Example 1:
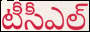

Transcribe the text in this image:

టీసీఎల్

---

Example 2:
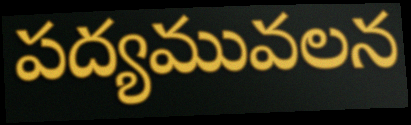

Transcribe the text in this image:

పద్యమువలన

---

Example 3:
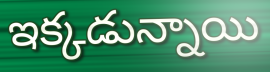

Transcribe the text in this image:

ఇక్కడున్నాయి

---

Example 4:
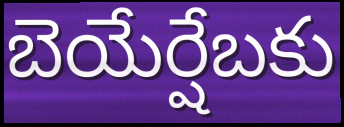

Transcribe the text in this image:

బెయేర్షేబకు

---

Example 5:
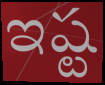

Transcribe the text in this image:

ఇష్ట